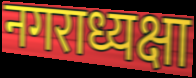
नगराध्यक्षा